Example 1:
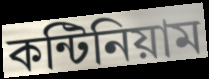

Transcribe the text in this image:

কন্টিনিয়াম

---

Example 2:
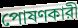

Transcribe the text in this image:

পোষণকারী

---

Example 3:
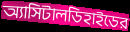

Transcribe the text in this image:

অ্যাসিটালডিহাইডের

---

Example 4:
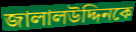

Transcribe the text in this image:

জালালউদ্দিনকে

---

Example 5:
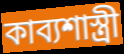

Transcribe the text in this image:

কাব্যশাস্ত্রী